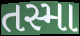
તસ્મા